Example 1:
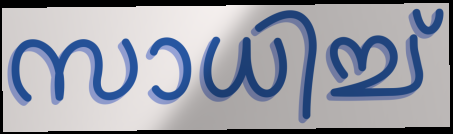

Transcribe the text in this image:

സാധിച്ച്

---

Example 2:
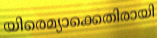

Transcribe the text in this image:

യിരെമ്യാക്കെതിരായി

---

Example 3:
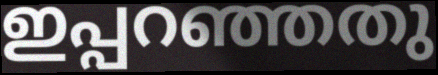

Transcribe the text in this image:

ഇപ്പറഞ്ഞതു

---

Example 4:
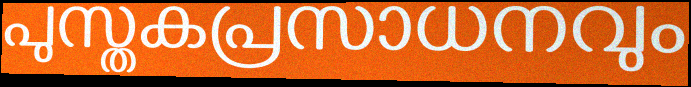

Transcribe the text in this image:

പുസ്തകപ്രസാധനവും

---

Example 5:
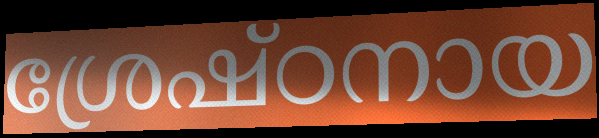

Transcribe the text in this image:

ശ്രേഷ്ഠനായ